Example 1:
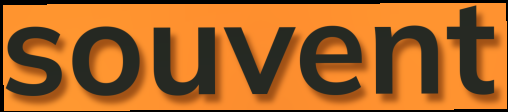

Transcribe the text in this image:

souvent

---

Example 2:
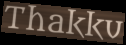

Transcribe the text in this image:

Thakku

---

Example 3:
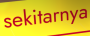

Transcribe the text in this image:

sekitarnya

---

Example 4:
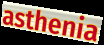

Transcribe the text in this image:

asthenia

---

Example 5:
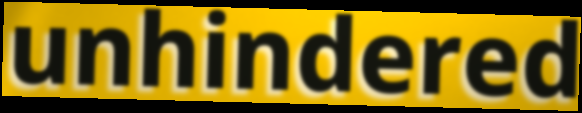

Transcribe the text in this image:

unhindered